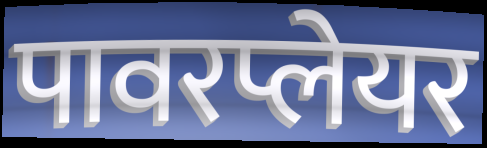
पावरप्लेयर